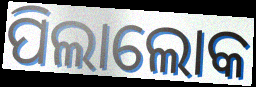
ପିଲାଲୋକ